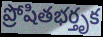
ప్రోషితభర్తృక